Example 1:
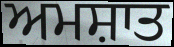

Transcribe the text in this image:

ਅਮਸ਼ਾਤ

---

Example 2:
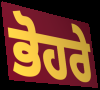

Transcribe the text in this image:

ਭੋਹਰੇ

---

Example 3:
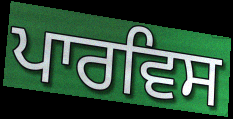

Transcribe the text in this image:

ਪਾਰਵਿਸ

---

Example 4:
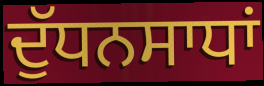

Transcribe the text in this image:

ਦੁੱਧਨਸਾਧਾਂ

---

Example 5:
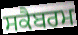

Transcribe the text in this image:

ਸਕੈਬਰਮ